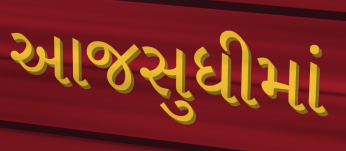
આજસુધીમાં